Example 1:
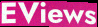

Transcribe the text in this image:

EViews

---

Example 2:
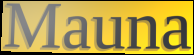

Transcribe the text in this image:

Mauna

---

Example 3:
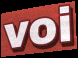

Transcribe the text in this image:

voi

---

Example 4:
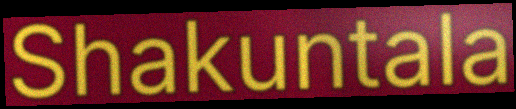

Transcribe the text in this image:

Shakuntala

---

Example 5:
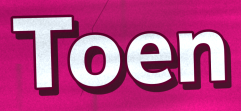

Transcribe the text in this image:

Toen